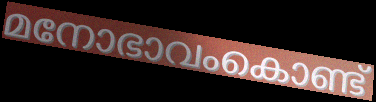
മനോഭാവംകൊണ്ട്